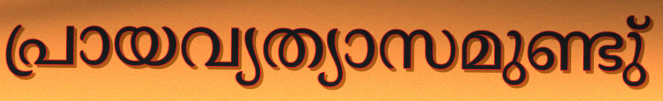
പ്രായവ്യത്യാസമുണ്ടു്